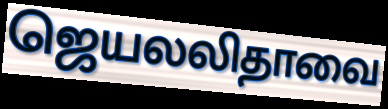
ஜெயலலிதாவை